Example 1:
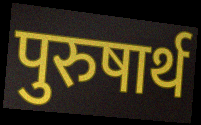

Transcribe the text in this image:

पुरुषार्थ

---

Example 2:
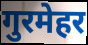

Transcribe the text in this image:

गुरमेहर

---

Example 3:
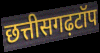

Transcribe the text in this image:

छत्तीसगढ़टॉप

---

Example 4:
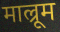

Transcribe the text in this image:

माल्रूम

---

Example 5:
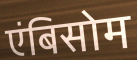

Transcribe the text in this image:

एंबिसोम